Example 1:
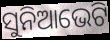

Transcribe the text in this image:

ସୁନିଆଭେଟି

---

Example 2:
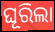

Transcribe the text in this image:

ଘୂରିଲା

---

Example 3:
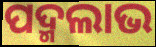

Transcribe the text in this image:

ପଦ୍ମଲାଭ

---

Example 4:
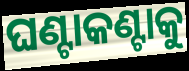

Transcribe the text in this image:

ଘଣ୍ଟାକଣ୍ଟାକୁ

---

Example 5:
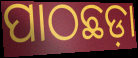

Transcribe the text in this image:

ପାଠଛଡ଼ା